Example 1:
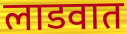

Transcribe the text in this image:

लाडवात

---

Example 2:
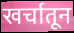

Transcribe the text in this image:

खर्चातून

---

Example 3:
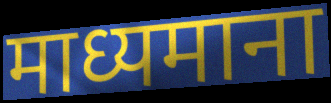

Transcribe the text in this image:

माध्यमाना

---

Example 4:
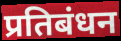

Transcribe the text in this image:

प्रतिबंधन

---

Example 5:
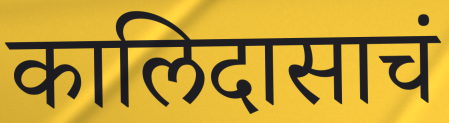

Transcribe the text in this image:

कालिदासाचं